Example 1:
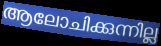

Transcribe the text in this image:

ആലോചിക്കുന്നില്ല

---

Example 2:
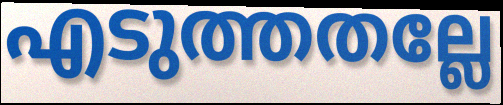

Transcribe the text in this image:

എടുത്തതല്ലേ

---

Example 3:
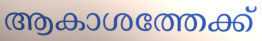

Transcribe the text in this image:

ആകാശത്തേക്ക്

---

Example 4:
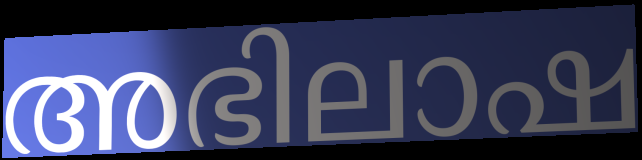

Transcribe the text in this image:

അഭിലാഷ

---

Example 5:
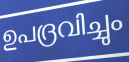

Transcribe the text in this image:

ഉപദ്രവിച്ചും